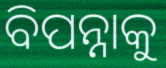
ବିପନ୍ନାକୁ